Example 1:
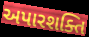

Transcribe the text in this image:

અપારશક્તિ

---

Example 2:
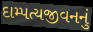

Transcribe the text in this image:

દામ્પત્યજીવનનું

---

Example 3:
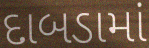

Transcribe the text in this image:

દાબડામાં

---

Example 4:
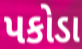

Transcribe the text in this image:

પકોડા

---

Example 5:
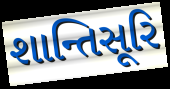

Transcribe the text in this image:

શાન્તિસૂરિ